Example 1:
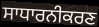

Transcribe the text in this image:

ਸਾਧਾਰਨੀਕਰਣ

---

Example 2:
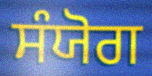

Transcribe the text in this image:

ਸੰਯੋਗ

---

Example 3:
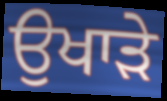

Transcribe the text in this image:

ਉਖਾੜੇ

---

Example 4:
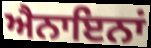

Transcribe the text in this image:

ਐਨਾਇਨਾਂ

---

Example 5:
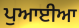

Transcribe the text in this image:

ਪੁਆਈਆ